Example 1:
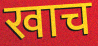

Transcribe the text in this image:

खाच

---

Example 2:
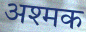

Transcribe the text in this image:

अश्मक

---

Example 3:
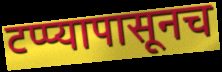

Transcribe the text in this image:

टप्प्यापासूनच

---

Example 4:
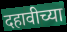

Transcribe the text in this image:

दहावीच्या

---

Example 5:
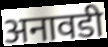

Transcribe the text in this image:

अनावडी